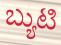
ಬ್ಯುಟಿ